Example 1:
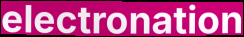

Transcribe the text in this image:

electronation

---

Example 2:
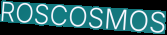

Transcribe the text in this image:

ROSCOSMOS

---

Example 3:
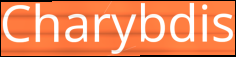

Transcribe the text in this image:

Charybdis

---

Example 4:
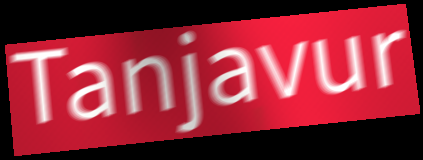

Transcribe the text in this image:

Tanjavur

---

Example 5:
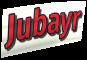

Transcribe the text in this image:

Jubayr